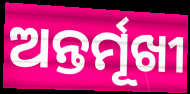
ଅନ୍ତର୍ମୂଖୀ